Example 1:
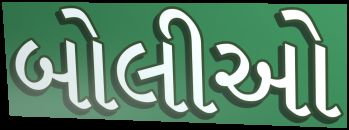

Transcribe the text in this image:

બોલીઓ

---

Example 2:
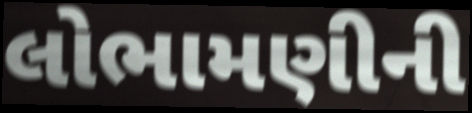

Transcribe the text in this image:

લોભામણીની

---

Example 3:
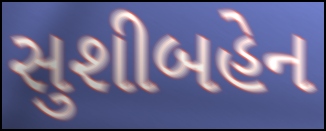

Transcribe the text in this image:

સુશીબહેન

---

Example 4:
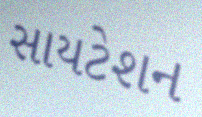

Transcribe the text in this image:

સાયટેશન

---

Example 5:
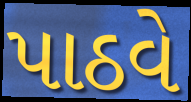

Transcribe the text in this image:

પાઠવે